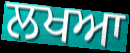
ਲਖਆ